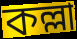
কল্লা